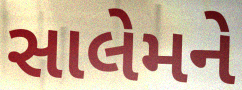
સાલેમને